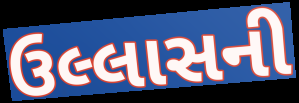
ઉલ્લાસની